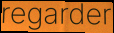
regarder